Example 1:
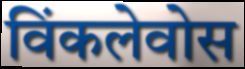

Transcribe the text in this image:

विंकलेवोस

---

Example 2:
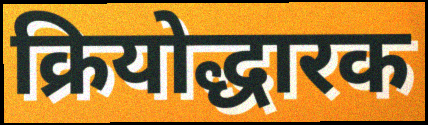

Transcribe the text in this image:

क्रियोद्धारक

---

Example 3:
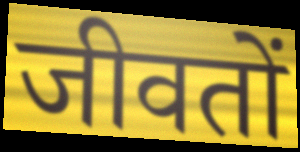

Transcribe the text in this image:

जीवतों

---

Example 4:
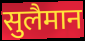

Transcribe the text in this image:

सुलैमान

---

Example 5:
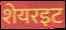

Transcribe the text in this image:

शेयरइट